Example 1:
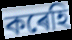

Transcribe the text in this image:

কৰেহি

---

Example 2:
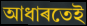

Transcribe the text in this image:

আধাৰতেই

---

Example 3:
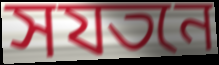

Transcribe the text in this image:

সযতনে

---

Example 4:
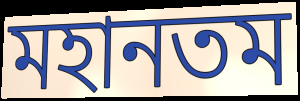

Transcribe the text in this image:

মহানতম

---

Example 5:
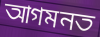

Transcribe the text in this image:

আগমনত